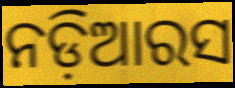
ନଡ଼ିଆରସ